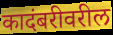
कादंबरीवरील